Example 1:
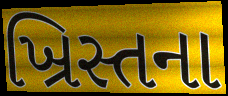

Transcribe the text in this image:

ખ્રિસ્તના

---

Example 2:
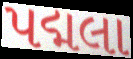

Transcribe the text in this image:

પદ્મલા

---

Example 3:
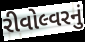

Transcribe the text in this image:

રીવોલ્વરનું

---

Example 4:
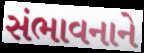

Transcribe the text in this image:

સંભાવનાને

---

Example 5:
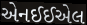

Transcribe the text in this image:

એનઈઈએલ